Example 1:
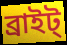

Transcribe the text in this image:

ব্রাইট্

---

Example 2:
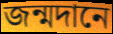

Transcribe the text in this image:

জন্মদানে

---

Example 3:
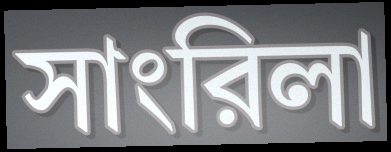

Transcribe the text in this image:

সাংরিলা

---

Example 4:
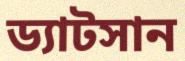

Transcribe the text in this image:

ড্যাটসান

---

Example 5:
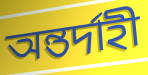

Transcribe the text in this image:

অন্তর্দাহী